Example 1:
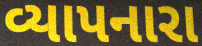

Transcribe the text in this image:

વ્યાપનારા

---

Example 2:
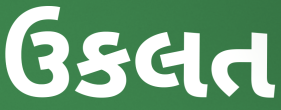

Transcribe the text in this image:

ઉકલત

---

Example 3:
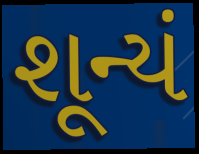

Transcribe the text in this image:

શૂન્યં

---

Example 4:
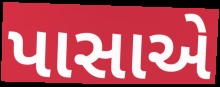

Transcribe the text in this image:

પાસાએ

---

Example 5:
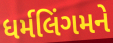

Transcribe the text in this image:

ધર્મલિંગમને